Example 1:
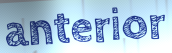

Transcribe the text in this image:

anterior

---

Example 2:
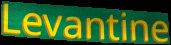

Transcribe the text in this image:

Levantine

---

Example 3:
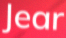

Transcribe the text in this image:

Jear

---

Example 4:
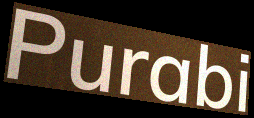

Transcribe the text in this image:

Purabi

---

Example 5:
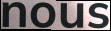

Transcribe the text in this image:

nous